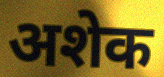
अशेक